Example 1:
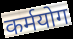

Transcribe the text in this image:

कर्मयोग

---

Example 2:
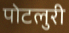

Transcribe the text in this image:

पोटलुरी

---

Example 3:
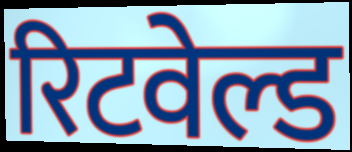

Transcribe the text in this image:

रिटवेल्ड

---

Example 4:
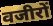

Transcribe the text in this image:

वजीरों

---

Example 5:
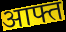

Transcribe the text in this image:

आफ्त